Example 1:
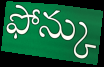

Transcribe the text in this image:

ఫోన్కు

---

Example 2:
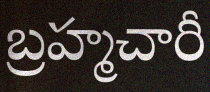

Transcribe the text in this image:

బ్రహ్మచారీ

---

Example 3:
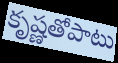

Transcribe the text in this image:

కృష్ణతోపాటు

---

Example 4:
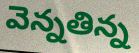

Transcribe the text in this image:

వెన్నతిన్న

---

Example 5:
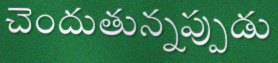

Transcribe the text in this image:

చెందుతున్నప్పుడు